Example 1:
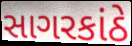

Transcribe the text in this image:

સાગરકાંઠે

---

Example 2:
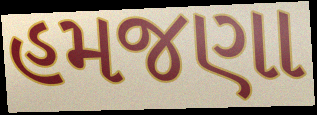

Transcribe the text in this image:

હમજણા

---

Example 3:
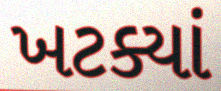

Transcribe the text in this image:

ખટક્યાં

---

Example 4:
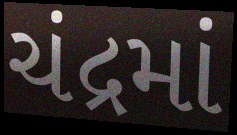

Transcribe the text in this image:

ચંદ્રમાં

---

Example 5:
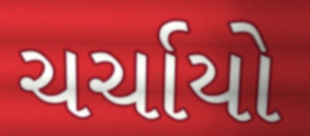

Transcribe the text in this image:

ચર્ચાયો